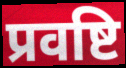
प्रवष्टि